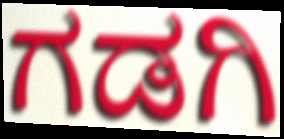
ಗಡಗಿ